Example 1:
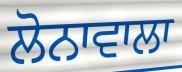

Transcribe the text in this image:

ਲੋਨਾਵਾਲਾ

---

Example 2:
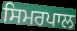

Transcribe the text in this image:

ਸਿਮਰਪਾਲ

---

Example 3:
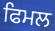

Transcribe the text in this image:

ਫਿਮਲ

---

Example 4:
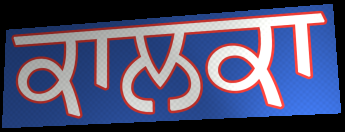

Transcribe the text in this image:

ਕਾਲਕਾ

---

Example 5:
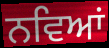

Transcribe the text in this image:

ਨਵਿਆਂ